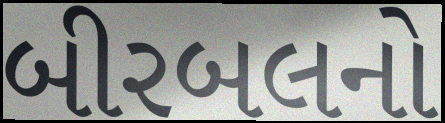
બીરબલનો